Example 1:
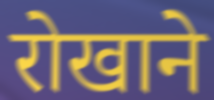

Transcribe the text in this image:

रोखाने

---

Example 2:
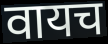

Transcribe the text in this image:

वायच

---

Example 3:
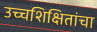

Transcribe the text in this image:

उच्चशिक्षितांचा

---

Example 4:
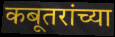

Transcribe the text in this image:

कबूतरांच्या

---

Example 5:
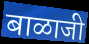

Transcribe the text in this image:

बाळाजी